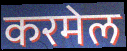
करमेल